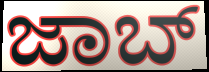
ಜಾಬ್